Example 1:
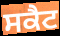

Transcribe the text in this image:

ਸਕੈਟ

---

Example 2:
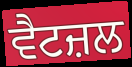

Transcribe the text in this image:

ਵੈਟਜ਼ਲ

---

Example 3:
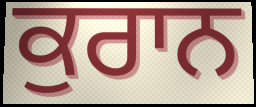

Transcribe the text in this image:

ਕੁਰਾਨ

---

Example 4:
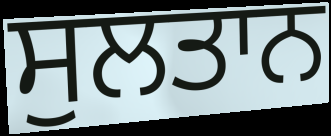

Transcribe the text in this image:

ਸੁਲਤਾਨ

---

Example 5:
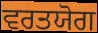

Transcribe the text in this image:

ਵਰਤਯੋਗ